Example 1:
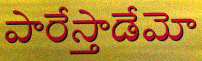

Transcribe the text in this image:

పారేస్తాడేమో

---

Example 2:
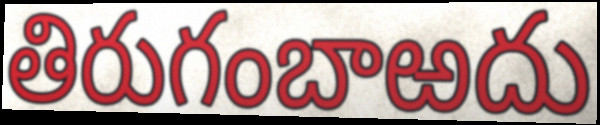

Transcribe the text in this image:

తిరుగంబాఱదు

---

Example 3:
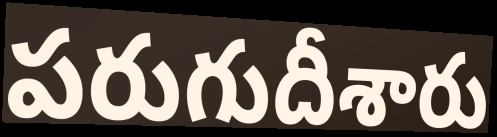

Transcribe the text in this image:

పరుగుదీశారు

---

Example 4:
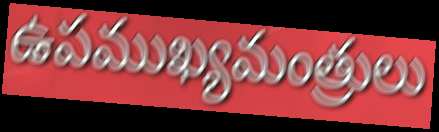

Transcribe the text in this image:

ఉపముఖ్యమంత్రులు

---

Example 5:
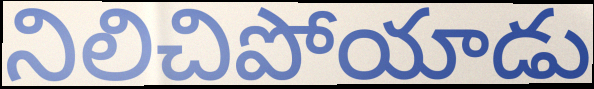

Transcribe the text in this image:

నిలిచిపోయాడు